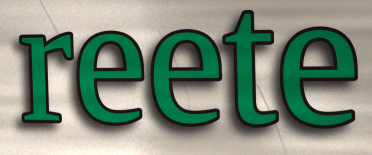
reete